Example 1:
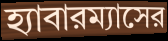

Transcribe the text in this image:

হ্যাবারম্যাসের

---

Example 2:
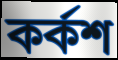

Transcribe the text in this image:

কর্কশ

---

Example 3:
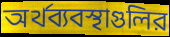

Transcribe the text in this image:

অর্থব্যবস্থাগুলির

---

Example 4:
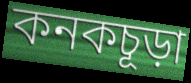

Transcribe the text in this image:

কনকচূড়া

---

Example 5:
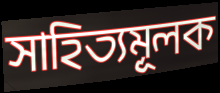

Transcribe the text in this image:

সাহিত্যমূলক